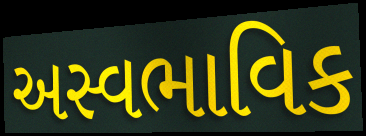
અસ્વભાવિક